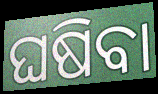
ଘଷିବା